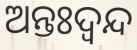
ଅନ୍ତଃଦ୍ବନ୍ଦ